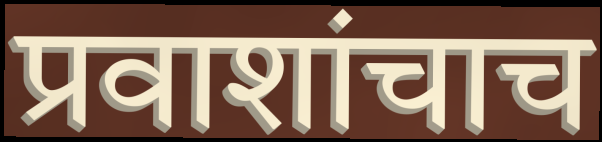
प्रवाशांचाच